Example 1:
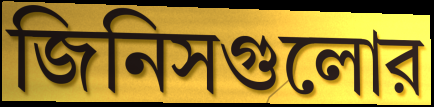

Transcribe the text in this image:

জিনিসগুলোর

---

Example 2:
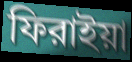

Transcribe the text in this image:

ফিরাইয়া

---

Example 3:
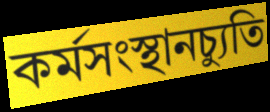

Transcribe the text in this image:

কর্মসংস্থানচ্যুতি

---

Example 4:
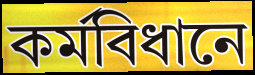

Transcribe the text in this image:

কর্মবিধানে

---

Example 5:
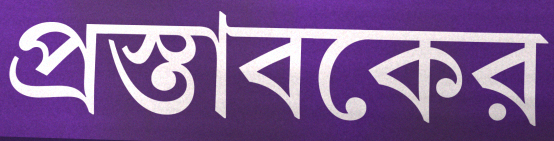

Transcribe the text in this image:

প্রস্তাবকের